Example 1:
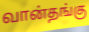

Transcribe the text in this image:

வான்தங்கு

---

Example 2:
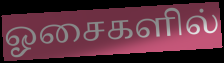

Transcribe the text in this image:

ஓசைகளில்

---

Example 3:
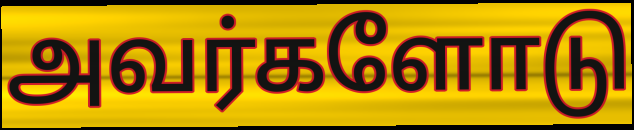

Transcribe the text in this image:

அவர்களோடு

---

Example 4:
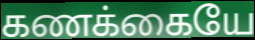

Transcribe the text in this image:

கணக்கையே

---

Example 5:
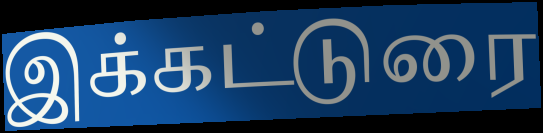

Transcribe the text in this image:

இக்கட்டுரை